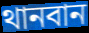
থানবান